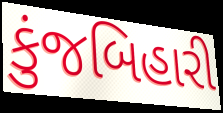
કુંજબિહારી